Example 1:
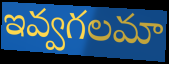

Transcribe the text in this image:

ఇవ్వగలమా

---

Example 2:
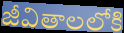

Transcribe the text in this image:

జీవితాలలోకి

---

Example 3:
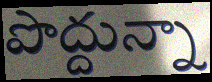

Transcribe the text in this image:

పొద్దున్నా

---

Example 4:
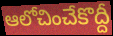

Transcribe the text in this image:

ఆలోచించేకొద్దీ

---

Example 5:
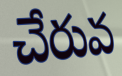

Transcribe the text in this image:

చేరువ